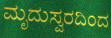
ಮೃದುಸ್ವರದಿಂದ